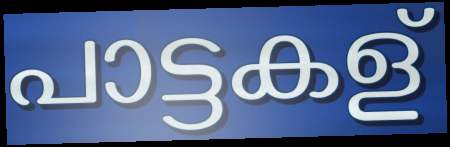
പാട്ടകള്